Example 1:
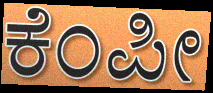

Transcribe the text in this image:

ಕೆಂಪೀ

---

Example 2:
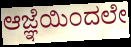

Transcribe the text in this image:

ಆಜ್ಞೆಯಿಂದಲೇ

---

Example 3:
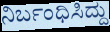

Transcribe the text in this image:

ನಿರ್ಬಂಧಿಸಿದ್ದು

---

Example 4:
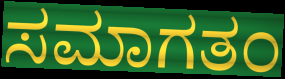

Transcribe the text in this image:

ಸಮಾಗತಂ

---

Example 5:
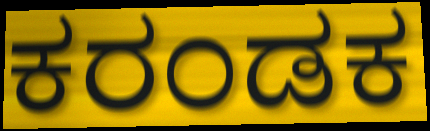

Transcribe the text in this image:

ಕರಂಡಕ